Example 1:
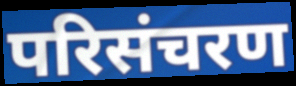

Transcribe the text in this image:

परिसंचरण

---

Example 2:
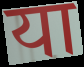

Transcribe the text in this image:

या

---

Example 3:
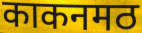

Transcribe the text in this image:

काकनमठ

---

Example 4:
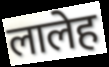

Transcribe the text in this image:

लालेह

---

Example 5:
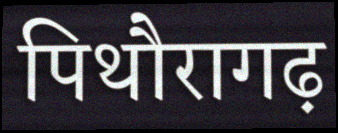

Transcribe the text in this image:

पिथौरागढ़